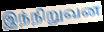
இந்நிறுவன